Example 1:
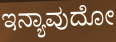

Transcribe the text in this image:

ಇನ್ಯಾವುದೋ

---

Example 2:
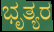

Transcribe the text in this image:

ಭೃತ್ಯರ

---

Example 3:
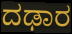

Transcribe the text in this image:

ದಢಾರ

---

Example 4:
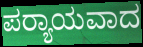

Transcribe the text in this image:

ಪರ‍್ಯಾಯವಾದ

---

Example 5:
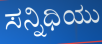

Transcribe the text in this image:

ಸನ್ನಿಧಿಯು